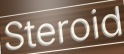
Steroid